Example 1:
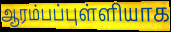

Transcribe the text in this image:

ஆரம்பப்புள்ளியாக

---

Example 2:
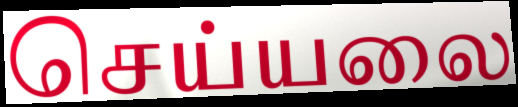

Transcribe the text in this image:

செய்யலை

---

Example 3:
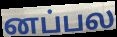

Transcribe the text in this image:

னப்பல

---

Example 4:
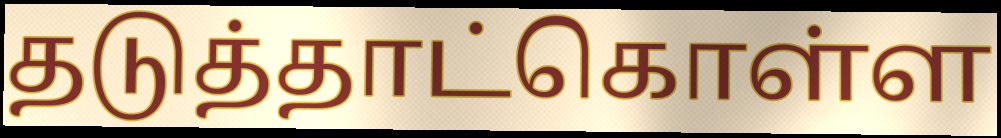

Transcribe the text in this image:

தடுத்தாட்கொள்ள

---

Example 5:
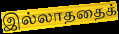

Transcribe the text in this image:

இல்லாததைக்